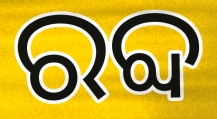
ରବ୍ଦ